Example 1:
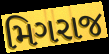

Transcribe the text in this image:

મિગરાજ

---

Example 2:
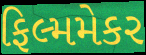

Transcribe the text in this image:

ફિલ્મમેકર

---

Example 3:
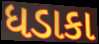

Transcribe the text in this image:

ધડાકા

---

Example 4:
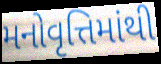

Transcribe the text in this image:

મનોવૃત્તિમાંથી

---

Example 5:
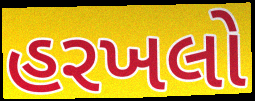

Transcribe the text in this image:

હરખલો